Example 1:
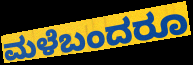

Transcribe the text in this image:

ಮಳೆಬಂದರೂ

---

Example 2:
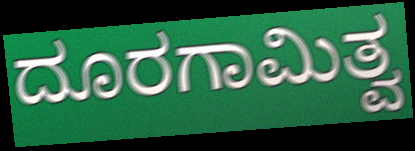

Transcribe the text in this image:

ದೂರಗಾಮಿತ್ವ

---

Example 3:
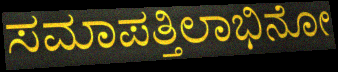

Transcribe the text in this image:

ಸಮಾಪತ್ತಿಲಾಭಿನೋ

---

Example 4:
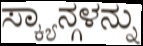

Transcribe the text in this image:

ಸ್ಕ್ಯಾನ್ಗಳನ್ನು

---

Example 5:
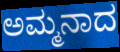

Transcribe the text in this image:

ಅಮ್ಮನಾದ